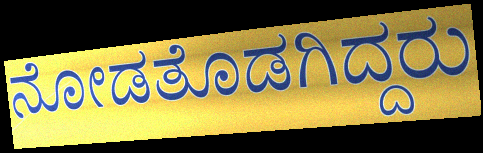
ನೋಡತೊಡಗಿದ್ದರು